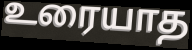
உரையாத